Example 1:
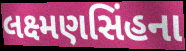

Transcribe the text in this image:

લક્ષ્મણસિંહના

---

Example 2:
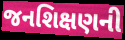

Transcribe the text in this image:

જનશિક્ષણની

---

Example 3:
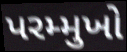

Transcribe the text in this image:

પરમ્મુખો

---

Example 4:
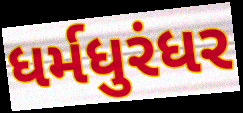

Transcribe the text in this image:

ધર્મધુરંધર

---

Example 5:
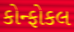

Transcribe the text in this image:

કોન્ફોકલ